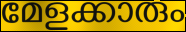
മേളക്കാരും